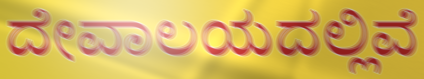
ದೇವಾಲಯದಲ್ಲಿವೆ